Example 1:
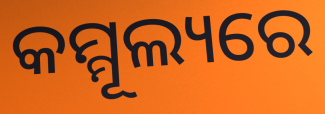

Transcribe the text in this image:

କମ୍ମୂଲ୍ୟରେ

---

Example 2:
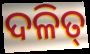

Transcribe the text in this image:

ଦଳିତ୍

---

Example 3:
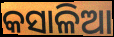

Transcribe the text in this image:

କସାଳିଆ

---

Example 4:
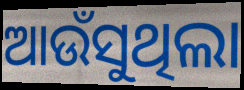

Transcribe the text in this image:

ଆଉଁସୁଥିଲା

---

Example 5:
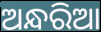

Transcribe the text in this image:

ଅନ୍ଧରିଆ